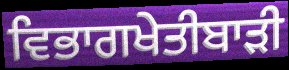
ਵਿਭਾਗਖੇਤੀਬਾੜੀ